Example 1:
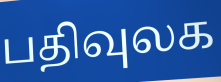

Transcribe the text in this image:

பதிவுலக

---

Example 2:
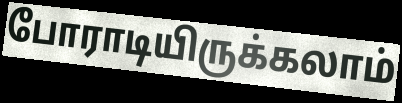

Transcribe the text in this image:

போராடியிருக்கலாம்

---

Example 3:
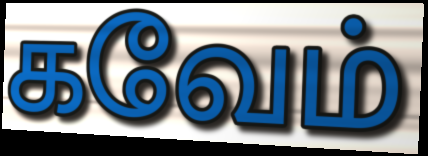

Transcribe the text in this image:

கவேம்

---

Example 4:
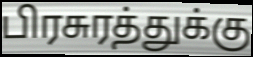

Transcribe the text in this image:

பிரசுரத்துக்கு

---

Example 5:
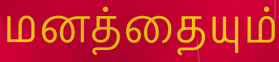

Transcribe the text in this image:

மனத்தையும்